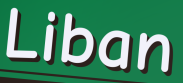
Liban